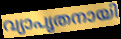
വ്യാപൃതനായി